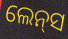
ଲେନ୍‍ସ